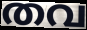
തവ